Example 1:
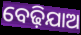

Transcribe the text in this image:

ବେଢ଼ିଯାଅ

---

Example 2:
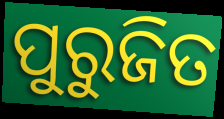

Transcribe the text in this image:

ପୁରୁଜିତ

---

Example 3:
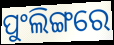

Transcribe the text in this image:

ପୁଂଲିଙ୍ଗରେ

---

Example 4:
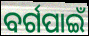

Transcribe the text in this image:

ବର୍ଗପାଇଁ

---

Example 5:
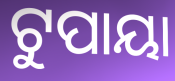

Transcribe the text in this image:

ଟୁପାୟା